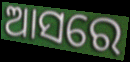
ଆସରେ